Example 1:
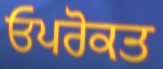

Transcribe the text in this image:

ਓਪਰੋਕਤ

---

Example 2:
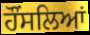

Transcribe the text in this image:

ਹੌਂਸਲਿਆਂ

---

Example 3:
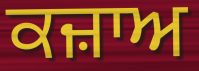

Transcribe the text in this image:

ਕਜ਼ਾਅ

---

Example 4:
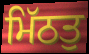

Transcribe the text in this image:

ਮਿੱਠਤੁ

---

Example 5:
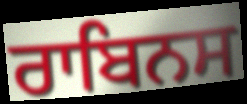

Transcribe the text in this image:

ਰਾਬਿਨਸ